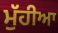
ਮੁੱਹੀਆ